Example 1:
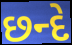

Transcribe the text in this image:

છન્દે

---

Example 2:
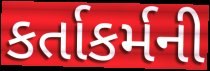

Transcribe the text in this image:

કર્તાકર્મની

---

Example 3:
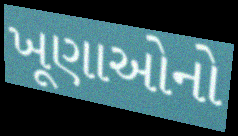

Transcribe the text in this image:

ખૂણાઓનો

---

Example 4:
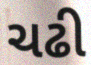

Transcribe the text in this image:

ચઢી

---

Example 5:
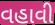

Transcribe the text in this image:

વહાવી